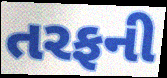
તરફની